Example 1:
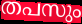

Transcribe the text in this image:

തപസും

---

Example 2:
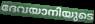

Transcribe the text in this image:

ദേവയാനിയുടെ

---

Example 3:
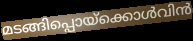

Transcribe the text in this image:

മടങ്ങിപ്പൊയ്ക്കൊൾവിൻ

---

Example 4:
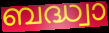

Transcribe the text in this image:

ബദ്ധ്വാ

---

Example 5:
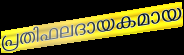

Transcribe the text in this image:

പ്രതിഫലദായകമായ